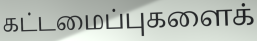
கட்டமைப்புகளைக்